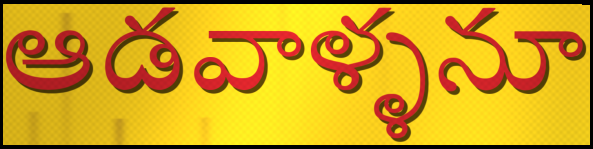
ఆడవాళ్ళనూ